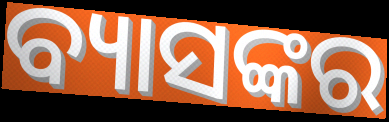
ବ୍ୟାସଙ୍କର